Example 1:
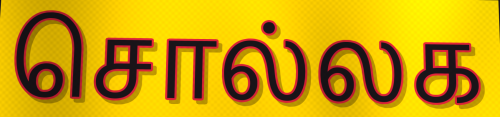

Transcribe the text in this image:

சொல்லக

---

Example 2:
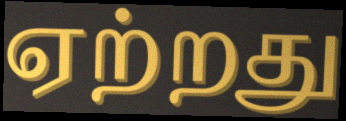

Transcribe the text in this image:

ஏற்றது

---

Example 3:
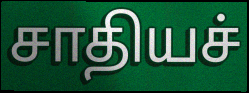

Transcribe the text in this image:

சாதியச்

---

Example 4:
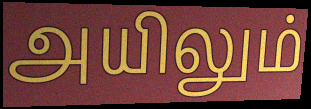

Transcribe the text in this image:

அயிலும்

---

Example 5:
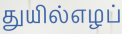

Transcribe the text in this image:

துயில்எழப்